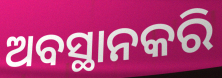
ଅବସ୍ଥାନକରି